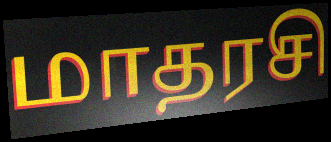
மாதரசி